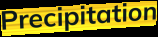
Precipitation